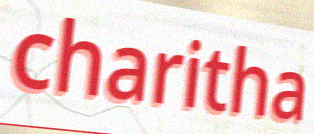
charitha